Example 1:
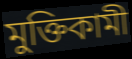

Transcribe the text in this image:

মুক্তিকামী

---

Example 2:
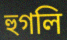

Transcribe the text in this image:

হুগলি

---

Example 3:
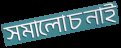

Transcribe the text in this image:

সমালোচনাই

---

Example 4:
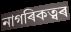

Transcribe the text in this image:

নাগৰিকত্বৰ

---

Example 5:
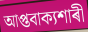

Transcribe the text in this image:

আপ্তবাক্যশাৰী